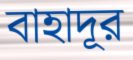
বাহাদূর